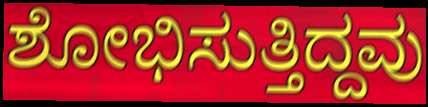
ಶೋಭಿಸುತ್ತಿದ್ದವು